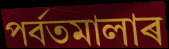
পৰ্বতমালাৰ